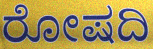
ರೋಷದಿ